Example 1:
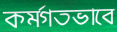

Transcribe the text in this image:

কর্মগতভাবে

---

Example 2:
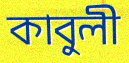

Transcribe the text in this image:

কাবুলী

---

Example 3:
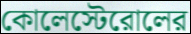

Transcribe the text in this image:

কোলেস্টেরোলের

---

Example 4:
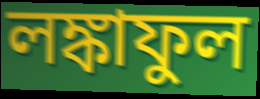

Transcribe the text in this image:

লঙ্কাফুল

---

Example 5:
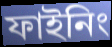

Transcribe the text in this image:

ফাইনিং